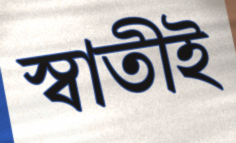
স্বাতীই